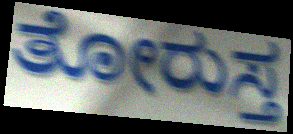
ತೋರುಸ್ತ